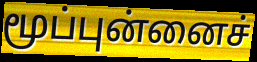
மூப்புன்னைச்